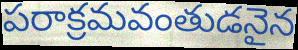
పరాక్రమవంతుడనైన